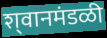
श्वानमंडळी